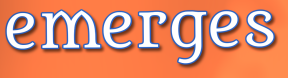
emerges